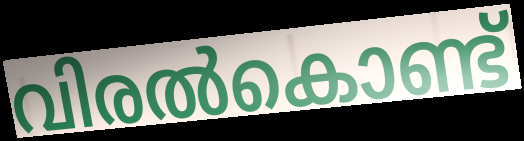
വിരൽകൊണ്ട്